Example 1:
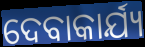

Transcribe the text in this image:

ଦେବାକାର୍ଯ୍ୟ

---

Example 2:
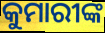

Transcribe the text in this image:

କୁମାରୀଙ୍କ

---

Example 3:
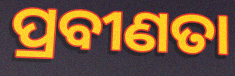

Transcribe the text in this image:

ପ୍ରବୀଣତା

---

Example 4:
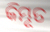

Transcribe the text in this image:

କିମ୍ଭୂତ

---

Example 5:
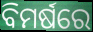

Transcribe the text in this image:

ବିମର୍ଷରେ